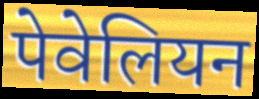
पेवेलियन